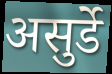
असुर्डे